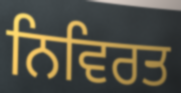
ਨਿਵਿਰਤ